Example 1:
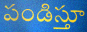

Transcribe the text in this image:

పండిస్తూ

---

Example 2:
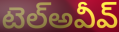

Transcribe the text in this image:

టెల్అవీవ్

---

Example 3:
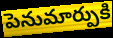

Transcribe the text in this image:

పెనుమార్పుకి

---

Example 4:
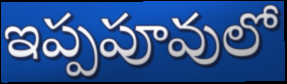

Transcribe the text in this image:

ఇప్పపూవులో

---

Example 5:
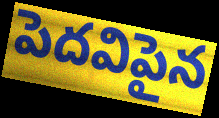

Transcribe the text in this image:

పెదవిపైన